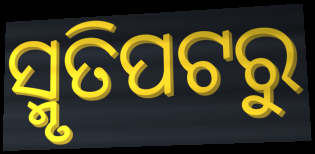
ସ୍ମୃତିପଟରୁ